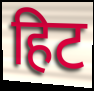
हिट